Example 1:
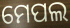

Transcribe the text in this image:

ମେପଲ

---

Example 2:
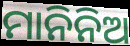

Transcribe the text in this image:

ମାନିନିଅ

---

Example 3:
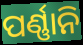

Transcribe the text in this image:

ପର୍ଣ୍ଣାନି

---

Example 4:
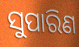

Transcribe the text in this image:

ସୁପାରିଣ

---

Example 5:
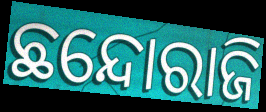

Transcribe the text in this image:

ଛନ୍ଦୋରାଜି